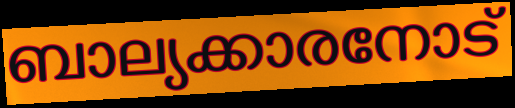
ബാല്യക്കാരനോട്